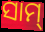
ସାମ୍